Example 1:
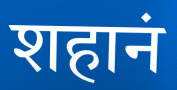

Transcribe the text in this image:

शहानं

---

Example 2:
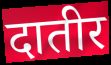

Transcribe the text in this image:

दातीर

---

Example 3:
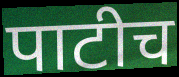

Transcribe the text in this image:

पाटीच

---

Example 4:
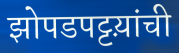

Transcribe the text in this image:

झोपडपट्टय़ांची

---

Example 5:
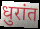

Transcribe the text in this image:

धुरांत